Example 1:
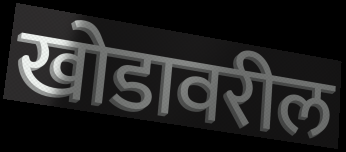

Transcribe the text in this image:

खोडावरील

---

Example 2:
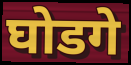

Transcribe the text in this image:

घोडगे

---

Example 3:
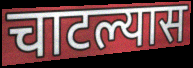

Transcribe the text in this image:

चाटल्यास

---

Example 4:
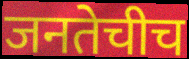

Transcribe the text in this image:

जनतेचीच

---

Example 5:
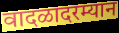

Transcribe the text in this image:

वादळादरम्यान